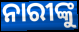
ନାରୀଙ୍କୁ